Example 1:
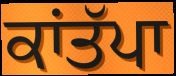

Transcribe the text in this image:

ਕਾਂਤੱਪਾ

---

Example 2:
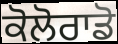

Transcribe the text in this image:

ਕੋਲੋਰਾਡੋ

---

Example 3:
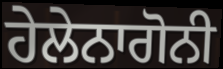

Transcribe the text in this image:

ਹੇਲੇਨਾਗੋਨੀ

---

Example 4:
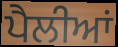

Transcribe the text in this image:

ਪੈਲੀਆਂ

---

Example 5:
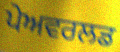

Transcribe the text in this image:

ਪੇਅਵਰਲਡ